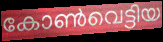
കോൺവെട്ടിയ